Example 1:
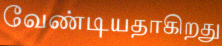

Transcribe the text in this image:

வேண்டியதாகிறது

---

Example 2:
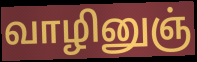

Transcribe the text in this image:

வாழினுஞ்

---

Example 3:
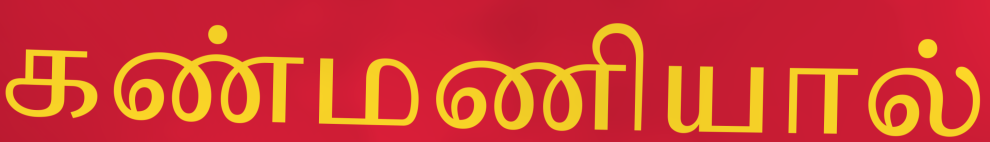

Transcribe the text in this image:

கண்மணியால்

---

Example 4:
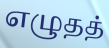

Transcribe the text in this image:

எழுதத்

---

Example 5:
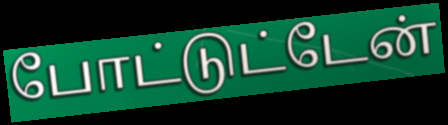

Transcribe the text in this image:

போட்டுட்டேன்